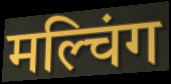
मल्चिंग